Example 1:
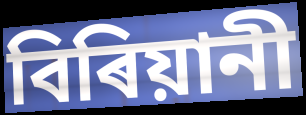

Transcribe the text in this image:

বিৰিয়ানী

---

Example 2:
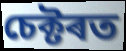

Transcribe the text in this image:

চেক্টৰত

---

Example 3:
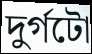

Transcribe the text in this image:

দুৰ্গটো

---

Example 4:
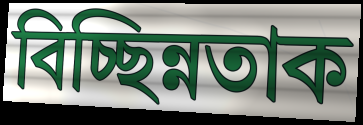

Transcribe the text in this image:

বিচ্ছিন্নতাক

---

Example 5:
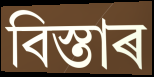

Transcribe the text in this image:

বিস্তাৰ